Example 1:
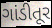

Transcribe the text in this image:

ગાંડીતૂર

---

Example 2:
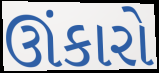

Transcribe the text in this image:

ઊંકારો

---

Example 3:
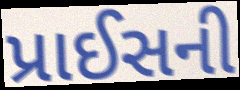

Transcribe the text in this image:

પ્રાઈસની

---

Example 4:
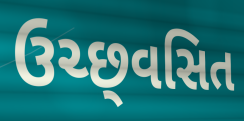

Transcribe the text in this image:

ઉચ્છ્‌વસિત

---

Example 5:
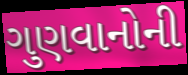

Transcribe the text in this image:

ગુણવાનોની